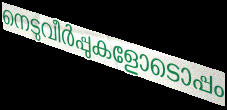
നെടുവീർപ്പുകളോടൊപ്പം